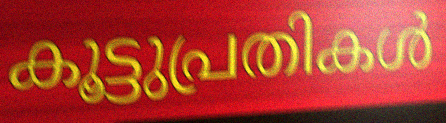
കൂട്ടുപ്രതികൾ